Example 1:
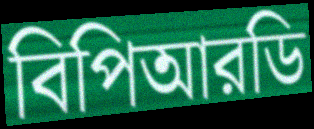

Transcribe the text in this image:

বিপিআরডি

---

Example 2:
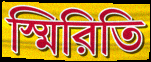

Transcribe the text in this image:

স্মিরিতি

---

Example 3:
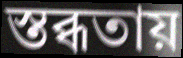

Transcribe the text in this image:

স্তব্ধতায়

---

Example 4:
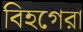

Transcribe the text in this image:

বিহগেরা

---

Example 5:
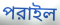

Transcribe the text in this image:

পরাইল